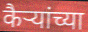
कैऱ्यांच्या